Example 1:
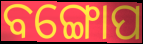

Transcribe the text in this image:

ବଙ୍ଗୋପ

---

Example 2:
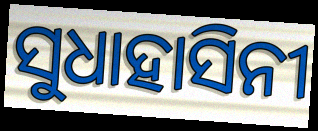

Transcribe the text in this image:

ସୁଧାହାସିନୀ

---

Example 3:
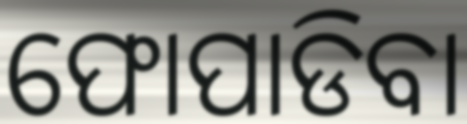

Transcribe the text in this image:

ଫୋପାଡିବା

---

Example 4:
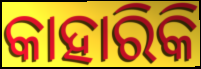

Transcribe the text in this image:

କାହାରିକି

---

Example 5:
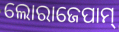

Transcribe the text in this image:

ଲୋରାଜେପାମ୍